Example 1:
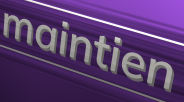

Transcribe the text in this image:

maintien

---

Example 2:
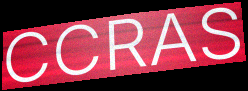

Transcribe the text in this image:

CCRAS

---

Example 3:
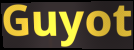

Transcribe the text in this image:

Guyot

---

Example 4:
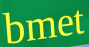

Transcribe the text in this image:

bmet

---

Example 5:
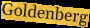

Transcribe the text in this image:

Goldenberg